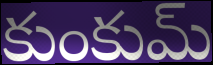
కుంకుమ్